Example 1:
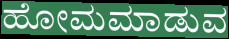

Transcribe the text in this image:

ಹೋಮಮಾಡುವ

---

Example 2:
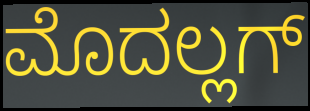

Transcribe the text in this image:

ಮೊದಲ್ಲಗ್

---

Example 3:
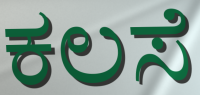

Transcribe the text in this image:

ಕಲಸೆ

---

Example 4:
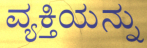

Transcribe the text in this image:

ವ್ಯಕ್ತಿಯನ್ನು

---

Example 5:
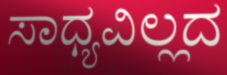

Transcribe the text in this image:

ಸಾಧ್ಯವಿಲ್ಲದ